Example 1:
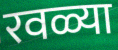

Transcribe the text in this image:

रवळ्या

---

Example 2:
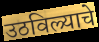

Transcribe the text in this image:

उठविल्याचे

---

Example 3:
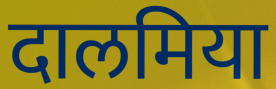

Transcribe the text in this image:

दालमिया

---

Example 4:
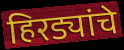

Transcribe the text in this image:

हिरड्यांचे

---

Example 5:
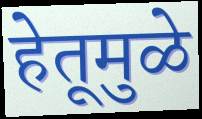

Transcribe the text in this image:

हेतूमुळे